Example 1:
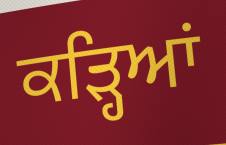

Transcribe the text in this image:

ਕੜ੍ਹਿਆਂ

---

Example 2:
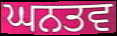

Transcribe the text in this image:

ਘਨਤਵ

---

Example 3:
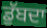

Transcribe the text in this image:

ਡੁੱਬਦਾ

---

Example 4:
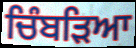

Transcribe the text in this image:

ਚਿੰਬੜਿਆ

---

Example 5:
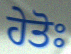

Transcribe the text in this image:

ਹੇਤੋਃ